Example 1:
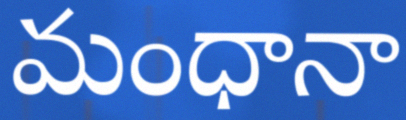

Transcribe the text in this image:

మంధానా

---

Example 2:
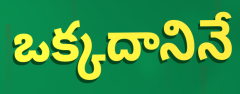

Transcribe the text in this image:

ఒక్కదానినే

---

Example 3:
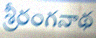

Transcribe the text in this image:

శ్రీరంగనాథ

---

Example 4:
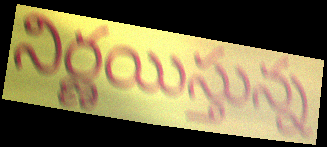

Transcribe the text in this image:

నిర్ణయిస్తున్న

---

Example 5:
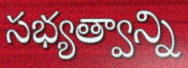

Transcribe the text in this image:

సభ్యత్వాన్ని